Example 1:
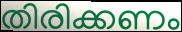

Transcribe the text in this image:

തിരിക്കണം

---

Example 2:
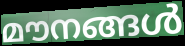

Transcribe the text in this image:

മൗനങ്ങൾ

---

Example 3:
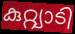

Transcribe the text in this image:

കുറ്റ്യാടി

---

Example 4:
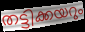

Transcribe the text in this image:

തട്ടിക്കയറും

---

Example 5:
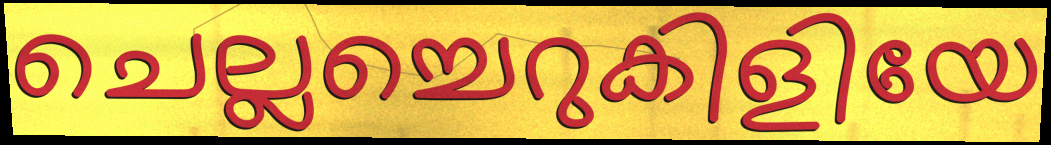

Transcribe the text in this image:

ചെല്ലച്ചെറുകിളിയേ